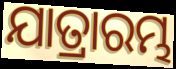
ଯାତ୍ରାରମ୍ଭ